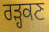
ਰੜ੍ਹਕਣ